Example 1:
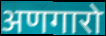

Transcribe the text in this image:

अणगारो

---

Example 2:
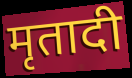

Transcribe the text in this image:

मृतादी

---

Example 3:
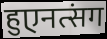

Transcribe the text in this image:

हुएनत्संग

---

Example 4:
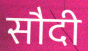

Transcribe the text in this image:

सौदी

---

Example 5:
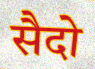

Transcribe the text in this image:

सैदो